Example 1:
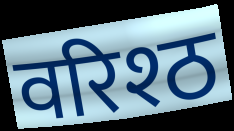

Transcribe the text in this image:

वरिश्ठ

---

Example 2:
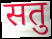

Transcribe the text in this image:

सतु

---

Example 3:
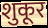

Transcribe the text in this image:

शुकूर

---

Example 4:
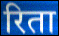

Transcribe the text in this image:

रिता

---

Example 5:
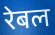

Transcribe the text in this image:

रेबल